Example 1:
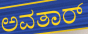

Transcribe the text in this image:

ಅವತಾರ್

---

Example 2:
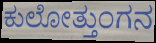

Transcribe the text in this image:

ಕುಲೋತ್ತುಂಗನ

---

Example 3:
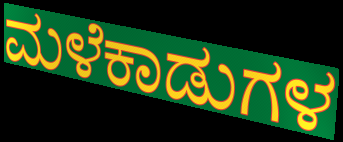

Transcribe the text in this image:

ಮಳೆಕಾಡುಗಳ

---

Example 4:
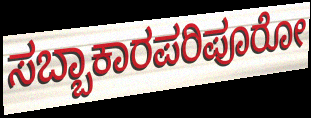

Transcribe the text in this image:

ಸಬ್ಬಾಕಾರಪರಿಪೂರೋ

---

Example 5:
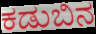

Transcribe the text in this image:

ಕಡುಬಿನ